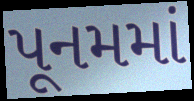
પૂનમમાં